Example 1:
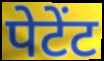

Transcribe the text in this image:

पेटेंट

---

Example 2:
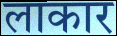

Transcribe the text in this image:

लाकार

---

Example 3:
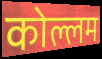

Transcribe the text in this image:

कोल्लम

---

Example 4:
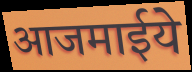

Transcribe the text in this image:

आजमाईये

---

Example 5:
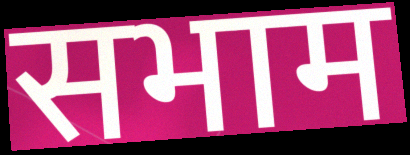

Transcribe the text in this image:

सभाम